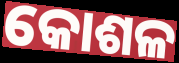
କୋଶଳ